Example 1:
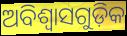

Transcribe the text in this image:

ଅବିଶ୍ଵାସଗୁଡ଼ିକ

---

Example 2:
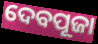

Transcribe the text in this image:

ଦେବପୂଜା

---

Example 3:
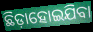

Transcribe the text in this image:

ଛିଡ଼ାହୋଇଯିବା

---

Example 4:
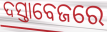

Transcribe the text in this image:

ଦସ୍ତାବେଜରେ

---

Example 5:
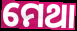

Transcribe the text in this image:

ମେଥା